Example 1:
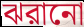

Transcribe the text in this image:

ঝরানো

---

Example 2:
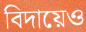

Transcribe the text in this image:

বিদায়েও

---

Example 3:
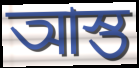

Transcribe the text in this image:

আস্ত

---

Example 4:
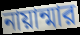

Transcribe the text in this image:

নায়ান্মার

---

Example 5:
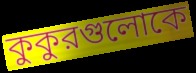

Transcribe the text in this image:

কুকুরগুলোকে